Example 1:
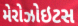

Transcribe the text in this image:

મેરોઝોઇટસ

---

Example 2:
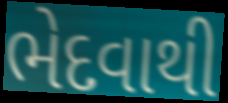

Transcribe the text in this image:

ભેદવાથી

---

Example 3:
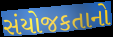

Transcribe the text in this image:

સંયોજકતાનો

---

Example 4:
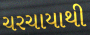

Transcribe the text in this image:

ચરચાયાથી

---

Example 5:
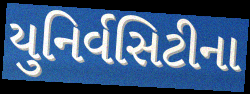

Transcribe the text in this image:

યુનિર્વસિટીના